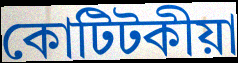
কোটিটকীয়া